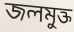
জলমুক্ত